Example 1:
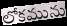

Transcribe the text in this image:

లోకమును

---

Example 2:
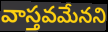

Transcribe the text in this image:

వాస్తవమేనని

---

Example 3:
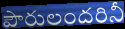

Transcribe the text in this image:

పౌరులందరినీ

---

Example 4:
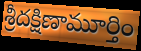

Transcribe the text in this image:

శ్రీదక్షిణామూర్తిం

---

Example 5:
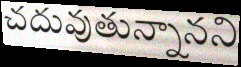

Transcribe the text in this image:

చదువుతున్నానని